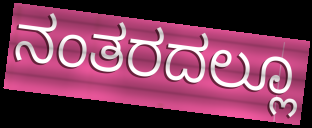
ನಂತರದಲ್ಲೂ